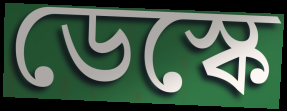
ডেস্কে